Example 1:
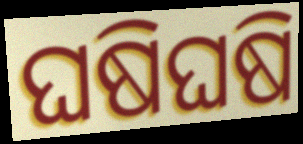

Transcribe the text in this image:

ଘଷିଘଷି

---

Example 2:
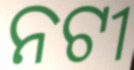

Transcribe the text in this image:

ନଟୀ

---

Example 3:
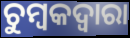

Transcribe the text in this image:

ଚୁମ୍ବକଦ୍ବାରା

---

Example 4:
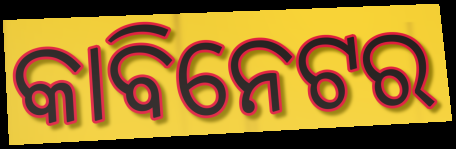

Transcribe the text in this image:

କାବିନେଟର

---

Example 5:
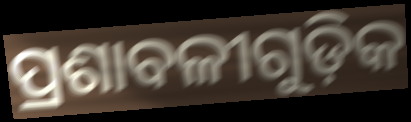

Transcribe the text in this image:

ପ୍ରଶାବଳୀଗୁଡ଼ିକ